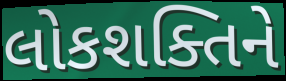
લોકશક્તિને